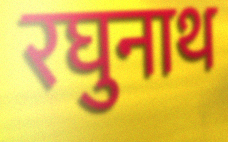
रघुनाथ